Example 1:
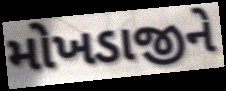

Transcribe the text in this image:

મોખડાજીને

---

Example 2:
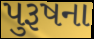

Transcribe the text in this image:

પુરૂષના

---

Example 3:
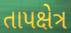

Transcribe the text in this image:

તાપક્ષેત્ર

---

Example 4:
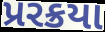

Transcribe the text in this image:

પ્રરક્રયા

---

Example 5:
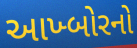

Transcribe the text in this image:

આખ્બોરનો